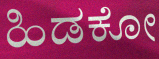
ಹಿಡಕೋ